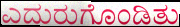
ಎದುರುಗೊಂಡಿತು